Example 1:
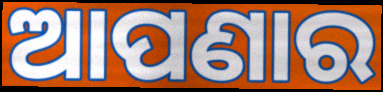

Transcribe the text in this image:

ଆପଣାର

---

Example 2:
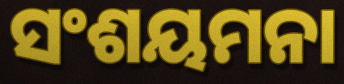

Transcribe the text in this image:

ସଂଶୟମନା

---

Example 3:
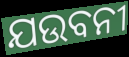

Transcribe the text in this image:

ଯଉବନୀ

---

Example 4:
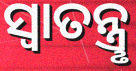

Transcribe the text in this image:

ସ୍ବାତନ୍ତ୍ରୢ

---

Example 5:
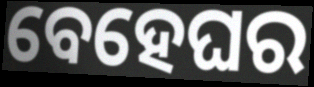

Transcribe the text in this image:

ବେହେଘର